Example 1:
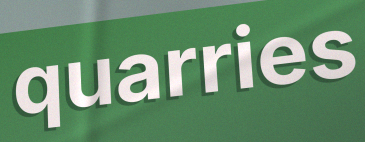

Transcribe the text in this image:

quarries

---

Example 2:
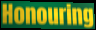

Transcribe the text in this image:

Honouring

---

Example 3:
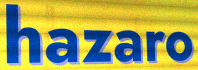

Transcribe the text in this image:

hazaro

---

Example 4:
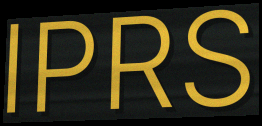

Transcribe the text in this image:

IPRS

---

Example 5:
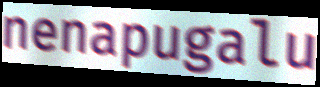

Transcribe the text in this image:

nenapugalu